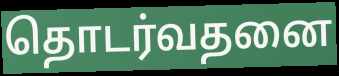
தொடர்வதனை